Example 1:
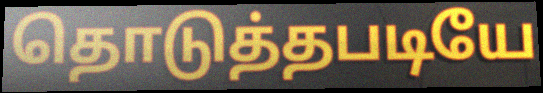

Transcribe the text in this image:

தொடுத்தபடியே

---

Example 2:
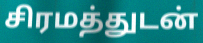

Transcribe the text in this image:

சிரமத்துடன்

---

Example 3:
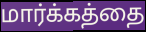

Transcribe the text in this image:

மார்க்கத்தை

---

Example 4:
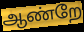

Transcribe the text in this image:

ஆண்றே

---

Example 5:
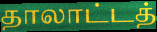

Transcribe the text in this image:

தாலாட்டத்